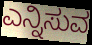
ಎನ್ನಿಸುವ